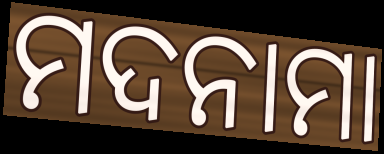
ମଦନାମା